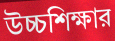
উচ্চশিক্ষার